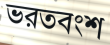
ভরতবংশ